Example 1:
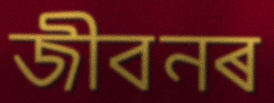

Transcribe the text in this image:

জীবনৰ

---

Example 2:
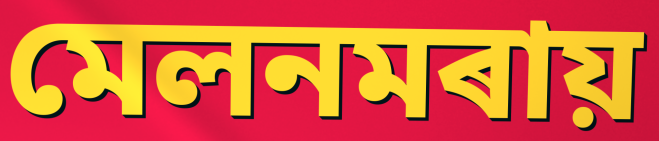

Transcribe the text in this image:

মেলনমৰায়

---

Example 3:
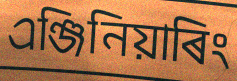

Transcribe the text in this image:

এঞ্জিনিয়াৰিং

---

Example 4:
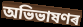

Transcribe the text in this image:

অভিভাষণৰ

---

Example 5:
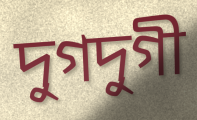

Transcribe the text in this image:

দুগদুগী